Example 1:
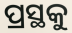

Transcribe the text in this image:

ପ୍ରସ୍ଥକୁ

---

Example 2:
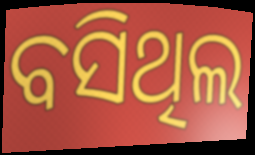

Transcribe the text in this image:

ବସିଥିଲ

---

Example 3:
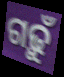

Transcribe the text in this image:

ଗଢ଼ୁଁ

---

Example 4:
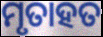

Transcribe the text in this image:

ମୃତାହତ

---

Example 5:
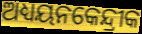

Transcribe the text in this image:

ଅଧ୍ୟୟନକେନ୍ଦ୍ରୀକ